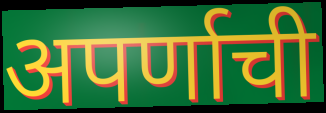
अपर्णाची